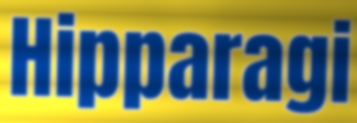
Hipparagi